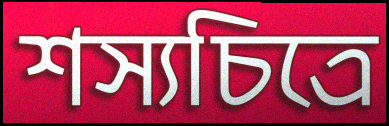
শস্যচিত্রে